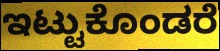
ಇಟ್ಟುಕೊಂಡರೆ